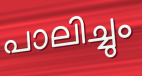
പാലിച്ചും